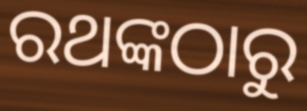
ରଥଙ୍କଠାରୁ